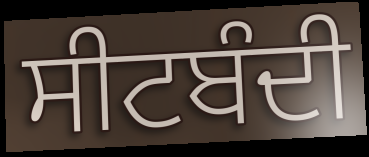
ਸੀਟਬੰਦੀ